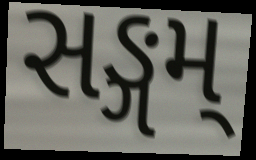
સઙ્ગમ્